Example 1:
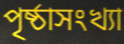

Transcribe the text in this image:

পৃষ্ঠাসংখ্যা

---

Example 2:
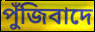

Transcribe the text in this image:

পুঁজিবাদে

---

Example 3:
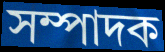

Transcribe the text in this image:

সম্পাদক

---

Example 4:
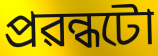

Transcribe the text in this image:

প্ৰৱন্ধটো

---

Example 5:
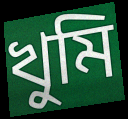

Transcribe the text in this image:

খুমি